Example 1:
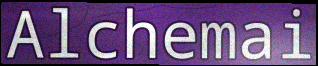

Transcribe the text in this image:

Alchemai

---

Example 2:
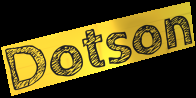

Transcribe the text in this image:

Dotson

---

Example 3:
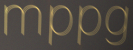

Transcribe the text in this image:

mppg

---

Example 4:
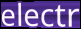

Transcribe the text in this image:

electr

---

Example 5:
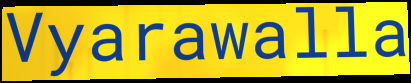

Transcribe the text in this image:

Vyarawalla